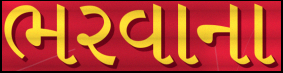
ભરવાના